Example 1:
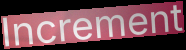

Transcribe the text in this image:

Increment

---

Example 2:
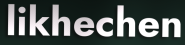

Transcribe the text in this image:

likhechen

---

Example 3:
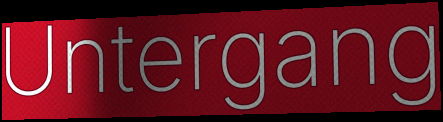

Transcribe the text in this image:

Untergang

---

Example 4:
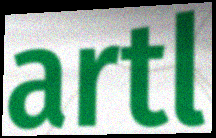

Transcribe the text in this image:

artl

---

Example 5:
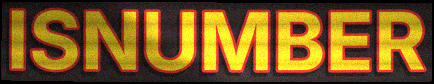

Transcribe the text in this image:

ISNUMBER